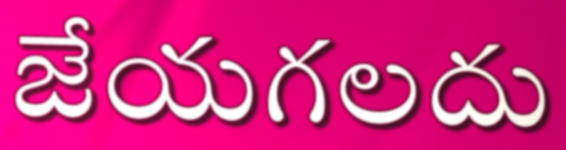
జేయగలదు